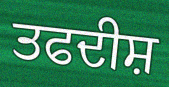
ਤਫਦੀਸ਼